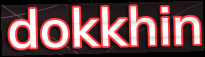
dokkhin